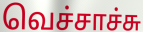
வெச்சாச்சு